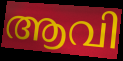
ആവി